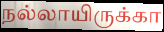
நல்லாயிருக்கா